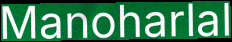
Manoharlal